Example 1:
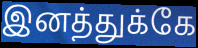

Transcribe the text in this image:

இனத்துக்கே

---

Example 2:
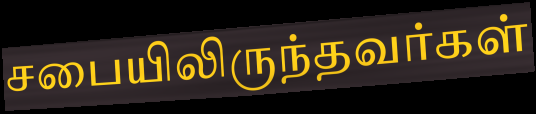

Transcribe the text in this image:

சபையிலிருந்தவர்கள்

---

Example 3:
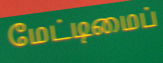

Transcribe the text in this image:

மேட்டிமைப்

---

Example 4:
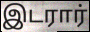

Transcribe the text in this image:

இடரார்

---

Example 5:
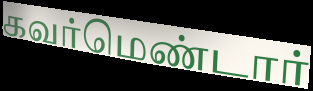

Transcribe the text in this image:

கவர்மெண்டார்